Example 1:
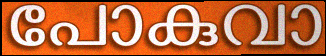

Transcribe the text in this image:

പോകുവാ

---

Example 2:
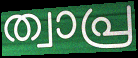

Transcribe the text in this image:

ത്വാപ്ര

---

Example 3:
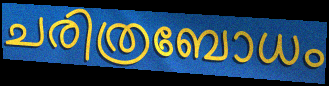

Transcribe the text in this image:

ചരിത്രബോധം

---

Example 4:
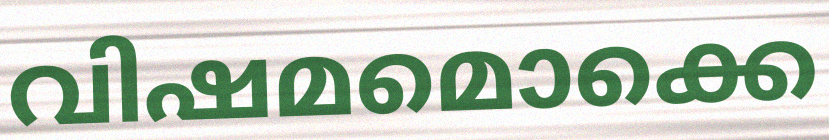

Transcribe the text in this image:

വിഷമമൊക്കെ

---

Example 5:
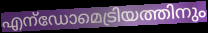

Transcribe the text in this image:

എന്ഡോമെട്രിയത്തിനും